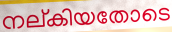
നല്കിയതോടെ